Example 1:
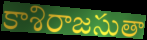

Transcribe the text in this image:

కాశిరాజసుతా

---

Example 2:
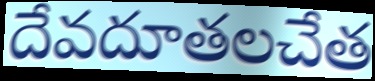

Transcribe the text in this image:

దేవదూతలచేత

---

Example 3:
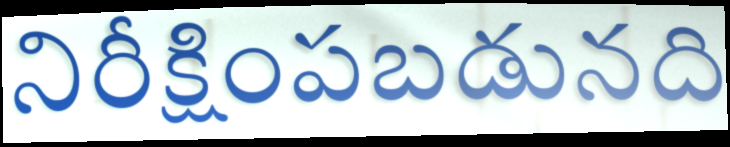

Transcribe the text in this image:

నిరీక్షింపబడునది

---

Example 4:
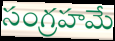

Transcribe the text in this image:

సంగ్రహమే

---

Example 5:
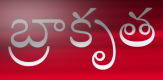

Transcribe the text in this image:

బ్రాకృత